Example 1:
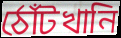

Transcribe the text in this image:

ঠোঁটখানি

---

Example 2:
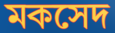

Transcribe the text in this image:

মকসেদ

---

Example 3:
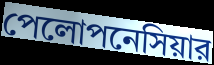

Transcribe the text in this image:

পেলোপনেসিয়ার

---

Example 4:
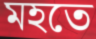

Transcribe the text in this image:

মহতে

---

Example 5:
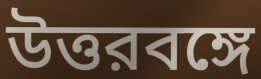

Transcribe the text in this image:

উত্তরবঙ্গে